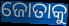
ଜୋତାକୁ